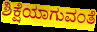
ಶಿಕ್ಷೆಯಾಗುವಂತೆ